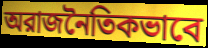
অরাজনৈতিকভাবে